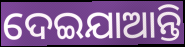
ଦେଇଯାଆନ୍ତି